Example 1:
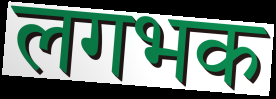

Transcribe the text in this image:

लगभक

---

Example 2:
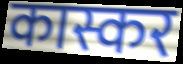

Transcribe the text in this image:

कास्कर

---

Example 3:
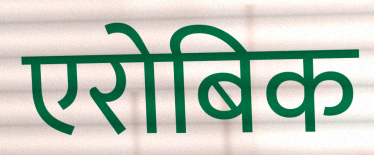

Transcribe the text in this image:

एरोबिक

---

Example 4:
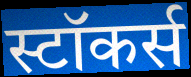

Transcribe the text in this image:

स्टॉकर्स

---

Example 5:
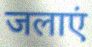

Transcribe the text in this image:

जलाएं